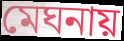
মেঘনায়